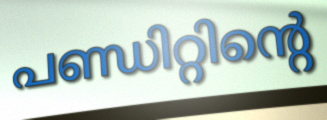
പണ്ഡിറ്റിന്റെ